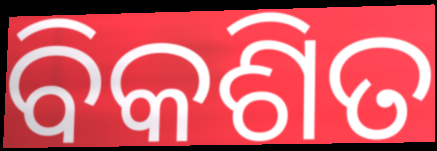
ବିକଶିତ